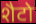
शैटो